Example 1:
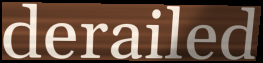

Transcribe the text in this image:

derailed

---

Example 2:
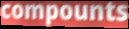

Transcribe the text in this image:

compounts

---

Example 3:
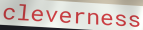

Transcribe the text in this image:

cleverness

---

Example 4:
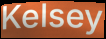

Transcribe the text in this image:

Kelsey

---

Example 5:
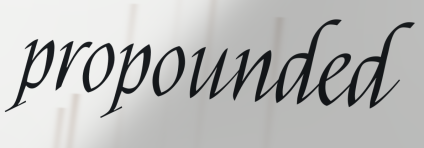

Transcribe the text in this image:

propounded